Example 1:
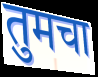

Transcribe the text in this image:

तुमचा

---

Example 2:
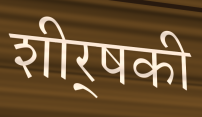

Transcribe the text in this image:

शीर्षकी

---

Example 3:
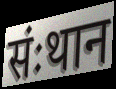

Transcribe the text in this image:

संःथान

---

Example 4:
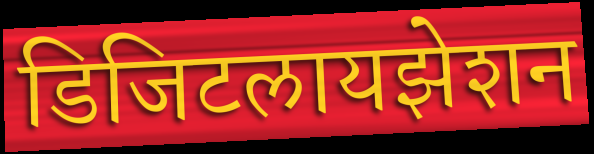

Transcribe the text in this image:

डिजिटलायझेशन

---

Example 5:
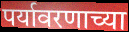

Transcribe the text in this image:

पर्यावरणाच्या